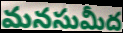
మనసుమీద